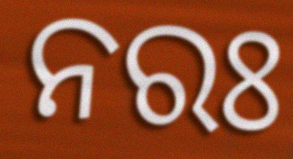
ନରଃ